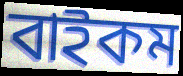
বাইকম